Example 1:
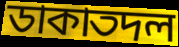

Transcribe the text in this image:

ডাকাতদল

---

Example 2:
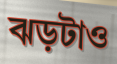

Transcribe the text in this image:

ঝড়টাও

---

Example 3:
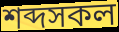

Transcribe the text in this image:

শব্দসকল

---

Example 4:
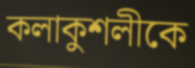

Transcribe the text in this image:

কলাকুশলীকে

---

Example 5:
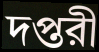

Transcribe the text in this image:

দপ্তরী